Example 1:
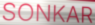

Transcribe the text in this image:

SONKAR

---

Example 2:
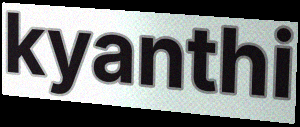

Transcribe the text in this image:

kyanthi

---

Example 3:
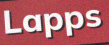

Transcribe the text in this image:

Lapps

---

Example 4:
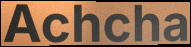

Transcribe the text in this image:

Achcha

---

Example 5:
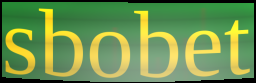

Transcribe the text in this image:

sbobet